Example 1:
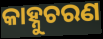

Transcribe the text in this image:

କାହ୍ନୁଚରଣ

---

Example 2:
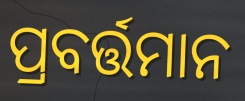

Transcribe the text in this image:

ପ୍ରବର୍ତ୍ତମାନ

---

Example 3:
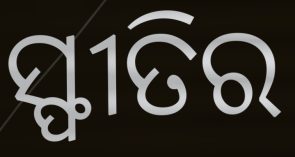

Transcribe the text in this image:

ସ୍ଫୀତିର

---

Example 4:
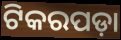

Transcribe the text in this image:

ଟିକରପଡ଼ା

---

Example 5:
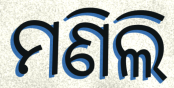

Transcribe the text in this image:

ମଣିଲି